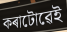
কৰাটোৱেই